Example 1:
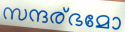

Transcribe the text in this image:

സന്ദര്ഭമോ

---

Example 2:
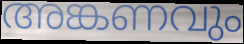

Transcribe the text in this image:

അങ്കണവും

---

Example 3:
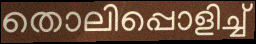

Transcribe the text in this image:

തൊലിപ്പൊളിച്ച്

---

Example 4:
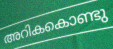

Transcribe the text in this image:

അറികകൊണ്ടു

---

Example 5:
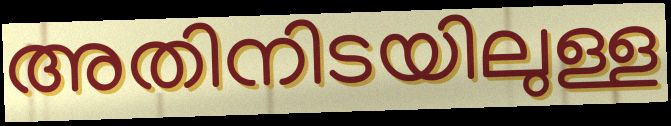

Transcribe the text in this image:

അതിനിടയിലുള്ള